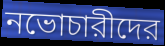
নভোচারীদের